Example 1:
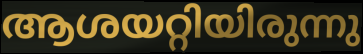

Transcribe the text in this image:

ആശയറ്റിയിരുന്നു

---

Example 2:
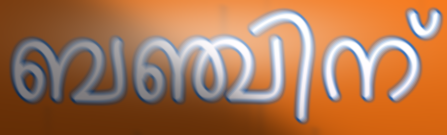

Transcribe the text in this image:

ബഞ്ചിന്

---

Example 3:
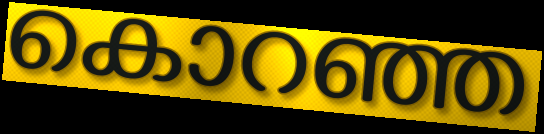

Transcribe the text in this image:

കൊറഞ്ഞ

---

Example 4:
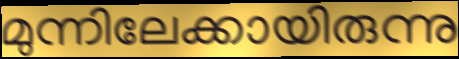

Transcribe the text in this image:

മുന്നിലേക്കായിരുന്നു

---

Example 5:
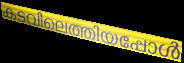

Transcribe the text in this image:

കടവിലെത്തിയപ്പോൾ